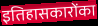
इतिहासकारोंका